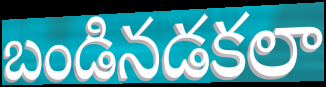
బండినడకలా